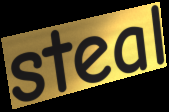
steal